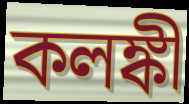
কলঙ্কী